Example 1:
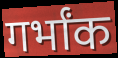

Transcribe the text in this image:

गर्भांक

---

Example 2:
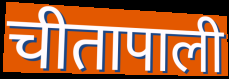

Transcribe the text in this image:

चीतापाली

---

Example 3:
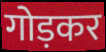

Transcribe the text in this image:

गोड़कर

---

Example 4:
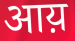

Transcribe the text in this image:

आय़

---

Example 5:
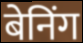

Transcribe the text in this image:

बेनिंग